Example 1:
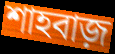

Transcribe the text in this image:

শাহবাজ়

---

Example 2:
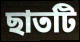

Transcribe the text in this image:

ছাতটি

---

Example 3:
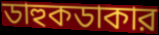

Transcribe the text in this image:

ডাহুকডাকার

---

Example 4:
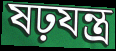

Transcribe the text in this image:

ষঢ়যন্ত্র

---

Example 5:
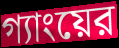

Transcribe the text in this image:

গ্যাংয়ের